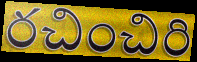
రచించిరి